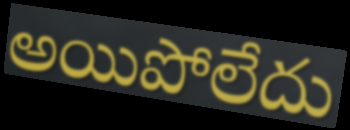
అయిపోలేదు